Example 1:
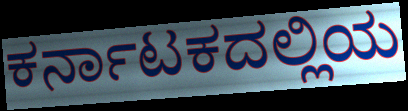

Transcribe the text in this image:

ಕರ್ನಾಟಕದಲ್ಲಿಯ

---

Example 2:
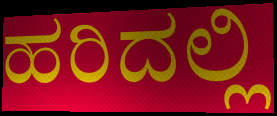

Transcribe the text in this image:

ಹರಿದಲ್ಲಿ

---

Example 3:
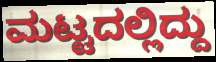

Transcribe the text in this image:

ಮಟ್ಟದಲ್ಲಿದ್ದು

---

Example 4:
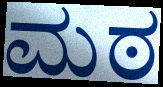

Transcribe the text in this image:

ಮಠ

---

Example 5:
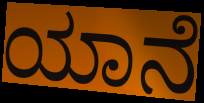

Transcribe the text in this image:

ಯಾನೆ